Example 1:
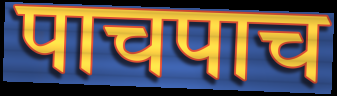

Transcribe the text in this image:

पाचपाच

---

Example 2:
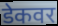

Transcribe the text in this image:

डेकवर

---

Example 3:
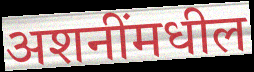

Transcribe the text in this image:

अशनींमधील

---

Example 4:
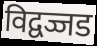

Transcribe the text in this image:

विद्वज्जड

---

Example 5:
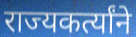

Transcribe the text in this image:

राज्यकर्त्यांने